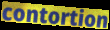
contortion